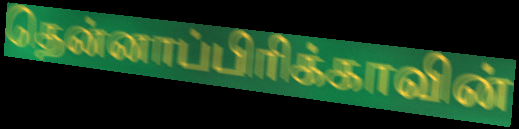
தென்னாப்பிரிக்காவின்